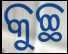
କୁଚ୍ଛ